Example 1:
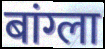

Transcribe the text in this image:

बांग्ला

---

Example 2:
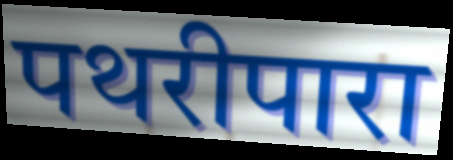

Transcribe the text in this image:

पथरीपारा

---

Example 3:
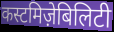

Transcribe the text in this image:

कस्टमिज़ेबिलिटी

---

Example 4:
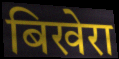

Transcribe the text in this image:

बिखेरा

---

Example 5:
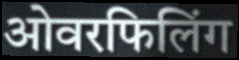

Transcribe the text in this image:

ओवरफिलिंग